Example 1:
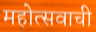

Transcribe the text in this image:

महोत्सवाची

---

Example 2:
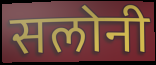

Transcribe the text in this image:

सलोनी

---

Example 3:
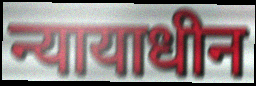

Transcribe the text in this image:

न्यायाधीन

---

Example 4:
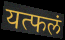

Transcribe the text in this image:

यत्फलं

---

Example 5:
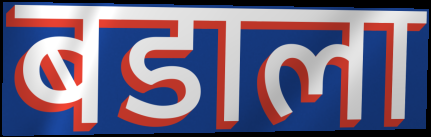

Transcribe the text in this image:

बडाला